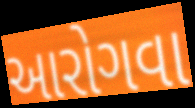
આરોગવા